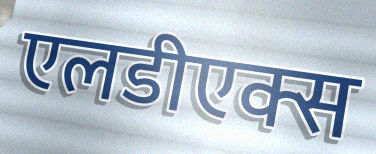
एलडीएक्स